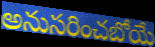
అనుసరించబోయే